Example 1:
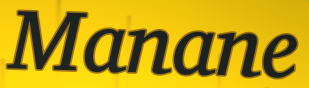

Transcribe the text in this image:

Manane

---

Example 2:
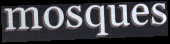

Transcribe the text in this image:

mosques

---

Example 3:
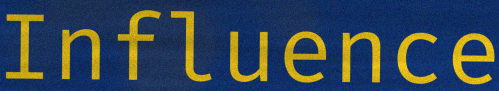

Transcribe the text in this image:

Influence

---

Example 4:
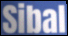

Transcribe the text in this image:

Sibal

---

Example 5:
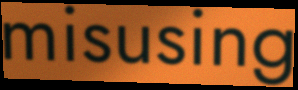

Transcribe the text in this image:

misusing